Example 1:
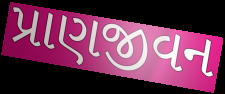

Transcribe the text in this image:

પ્રાણજીવન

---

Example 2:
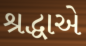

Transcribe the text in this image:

શ્રદ્ધાએ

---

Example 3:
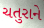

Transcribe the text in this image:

ચતુરાને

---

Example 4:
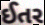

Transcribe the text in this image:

ઈતર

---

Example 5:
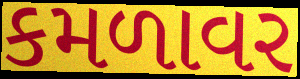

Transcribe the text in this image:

કમળાવર